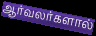
ஆர்வலர்களால்